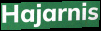
Hajarnis